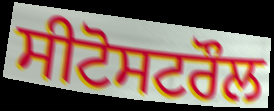
ਸੀਟੋਸਟਰੌਲ